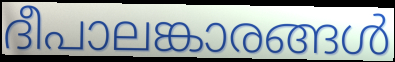
ദീപാലങ്കാരങ്ങൾ